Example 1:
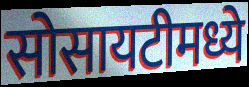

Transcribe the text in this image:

सोसायटीमध्ये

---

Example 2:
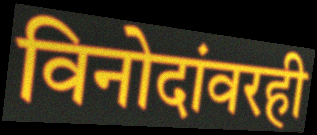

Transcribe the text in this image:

विनोदांवरही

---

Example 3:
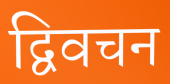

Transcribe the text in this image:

द्विवचन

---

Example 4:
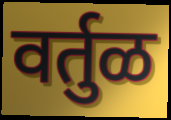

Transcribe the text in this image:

वर्तुळ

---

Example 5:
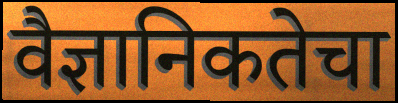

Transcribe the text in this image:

वैज्ञानिकतेचा